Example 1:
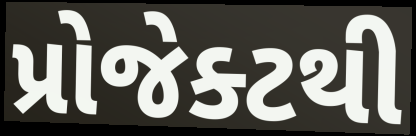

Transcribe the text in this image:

પ્રોજેક્ટથી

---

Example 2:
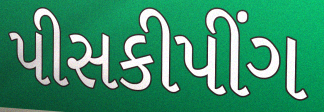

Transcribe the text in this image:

પીસકીપીંગ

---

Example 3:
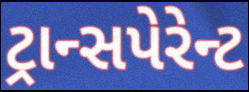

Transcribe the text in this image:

ટ્રાન્સપેરેન્ટ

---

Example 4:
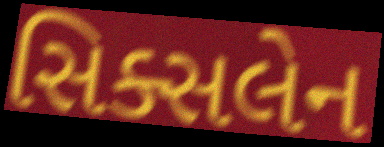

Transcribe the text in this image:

સિક્સલેન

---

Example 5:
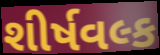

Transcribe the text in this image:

શીર્ષવલ્ક